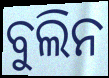
ବୁଲିନ